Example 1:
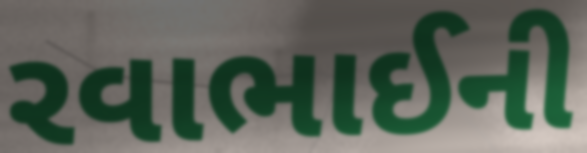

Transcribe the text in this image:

રવાભાઈની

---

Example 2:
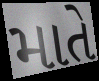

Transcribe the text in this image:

માતે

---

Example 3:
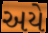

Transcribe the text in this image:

અયે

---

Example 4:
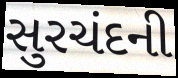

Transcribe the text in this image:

સુરચંદની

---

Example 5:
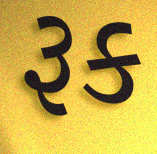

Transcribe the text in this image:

રૂક